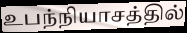
உபந்நியாசத்தில்